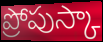
ప్రోపుస్కా